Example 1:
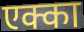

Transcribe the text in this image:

एक्का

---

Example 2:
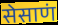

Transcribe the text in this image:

सेसाणं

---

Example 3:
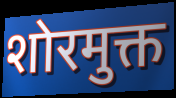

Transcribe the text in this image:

शोरमुक्त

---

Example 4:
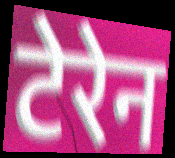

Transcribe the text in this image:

टेरेन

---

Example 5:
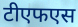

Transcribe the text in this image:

टीएफएस